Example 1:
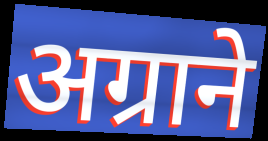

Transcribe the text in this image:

अग्राने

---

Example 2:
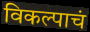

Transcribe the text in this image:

विकल्पाचं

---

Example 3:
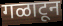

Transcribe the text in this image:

गळाटून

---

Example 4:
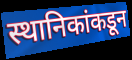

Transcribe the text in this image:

स्थानिकांकडून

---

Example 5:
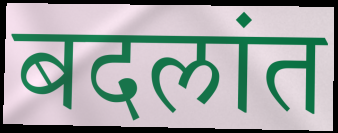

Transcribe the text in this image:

बदलांत